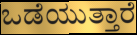
ಒಡೆಯುತ್ತಾರೆ